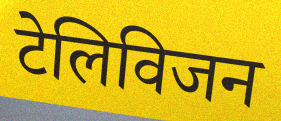
टेलिविजन